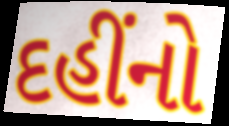
દહીંનો